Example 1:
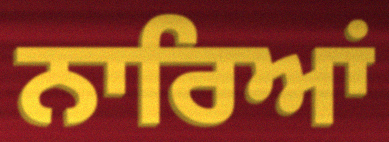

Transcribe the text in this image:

ਨਾਰਿਆਂ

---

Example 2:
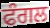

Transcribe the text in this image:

ਫੰਗਲ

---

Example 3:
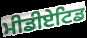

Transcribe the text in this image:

ਮੀਡੀਏਟਿਡ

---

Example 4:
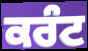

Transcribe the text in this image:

ਕਰੰਟ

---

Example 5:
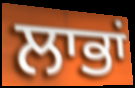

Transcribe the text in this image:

ਲਾਭਾਂ